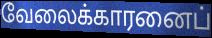
வேலைக்காரனைப்